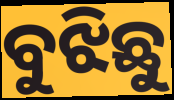
ବୁଝିଛୁ